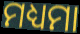
ମଧ୍ୟମା